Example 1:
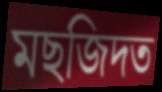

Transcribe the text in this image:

মছজিদত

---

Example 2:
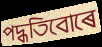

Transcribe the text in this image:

পদ্ধতিবোৰে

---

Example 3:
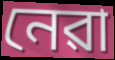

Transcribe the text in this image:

নেৱা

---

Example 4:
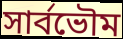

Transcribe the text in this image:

সাৰ্বভৌম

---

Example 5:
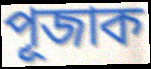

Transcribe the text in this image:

পূজাক